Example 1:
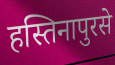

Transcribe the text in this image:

हस्तिनापुरसे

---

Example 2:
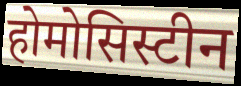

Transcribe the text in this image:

होमोसिस्टीन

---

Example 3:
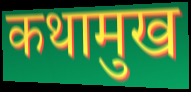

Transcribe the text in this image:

कथामुख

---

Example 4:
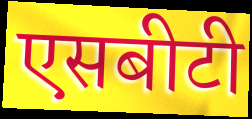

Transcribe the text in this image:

एसबीटी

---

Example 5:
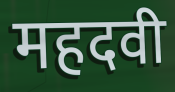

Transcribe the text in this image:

महदवी